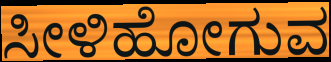
ಸೀಳಿಹೋಗುವ